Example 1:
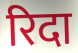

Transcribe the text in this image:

रिदा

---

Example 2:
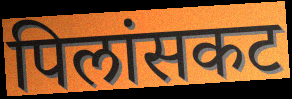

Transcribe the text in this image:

पिलांसकट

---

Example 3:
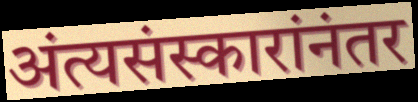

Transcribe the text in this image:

अंत्यसंस्कारांनंतर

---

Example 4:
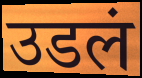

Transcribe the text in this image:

उडलं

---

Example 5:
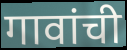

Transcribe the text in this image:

गावांची